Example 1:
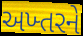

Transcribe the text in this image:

અખ્તરને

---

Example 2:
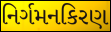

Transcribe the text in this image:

નિર્ગમનકિરણ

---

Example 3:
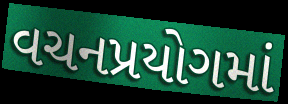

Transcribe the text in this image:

વચનપ્રયોગમાં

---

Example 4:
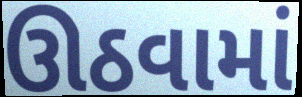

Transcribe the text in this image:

ઊઠવામાં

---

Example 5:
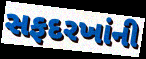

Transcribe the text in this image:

સફદરખાંની